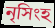
নৃসিংহ